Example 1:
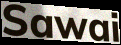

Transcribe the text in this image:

Sawai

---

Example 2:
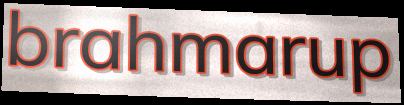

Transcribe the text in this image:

brahmarup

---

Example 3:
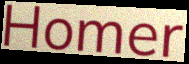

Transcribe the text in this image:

Homer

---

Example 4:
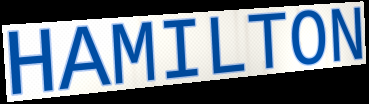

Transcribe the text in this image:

HAMILTON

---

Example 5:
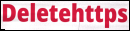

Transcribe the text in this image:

Deletehttps